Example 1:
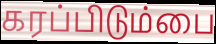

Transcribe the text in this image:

கரப்பிடும்பை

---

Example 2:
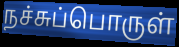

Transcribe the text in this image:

நச்சுப்பொருள்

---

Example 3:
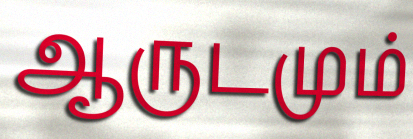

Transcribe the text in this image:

ஆருடமும்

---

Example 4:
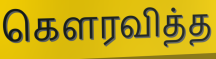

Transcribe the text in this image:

கெளரவித்த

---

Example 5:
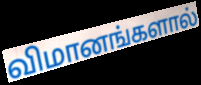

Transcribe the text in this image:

விமானங்களால்